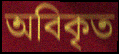
অবিকৃত